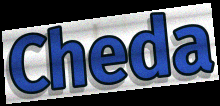
Cheda